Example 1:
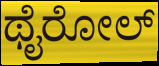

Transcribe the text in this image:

ಥೈರೋಲ್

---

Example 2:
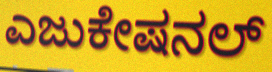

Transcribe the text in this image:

ಎಜುಕೇಷನಲ್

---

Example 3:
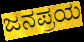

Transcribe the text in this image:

ಜನಪ್ರಯ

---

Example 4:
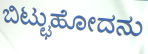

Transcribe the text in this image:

ಬಿಟ್ಟುಹೋದನು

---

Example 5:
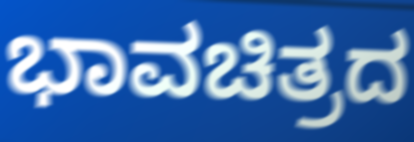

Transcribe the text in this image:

ಭಾವಚಿತ್ರದ